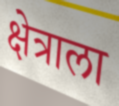
क्षेत्राला